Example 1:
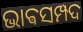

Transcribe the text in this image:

ଭାଵସମ୍ପଦ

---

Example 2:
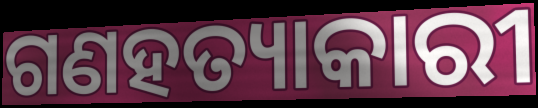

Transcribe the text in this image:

ଗଣହତ୍ୟାକାରୀ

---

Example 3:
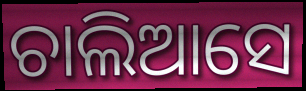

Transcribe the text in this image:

ଚାଲିଆସେ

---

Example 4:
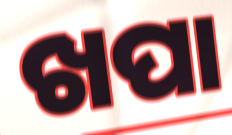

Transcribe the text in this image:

ଖପା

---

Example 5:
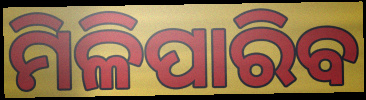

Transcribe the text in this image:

ମିଳିପାରିବ